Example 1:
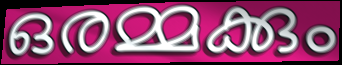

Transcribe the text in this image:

ഒരമ്മക്കും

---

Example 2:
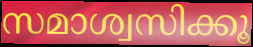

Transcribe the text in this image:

സമാശ്വസിക്കൂ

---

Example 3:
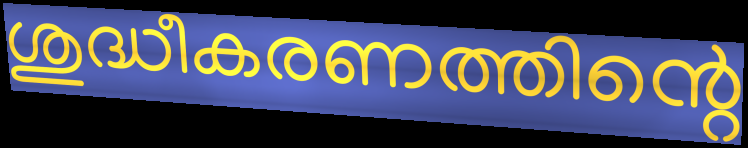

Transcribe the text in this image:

ശുദ്ധീകരണത്തിന്റെ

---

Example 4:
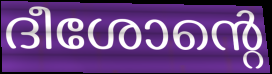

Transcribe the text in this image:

ദീശോന്റെ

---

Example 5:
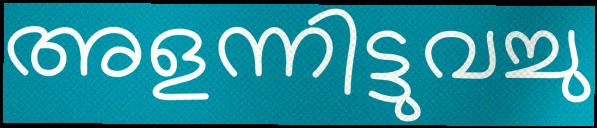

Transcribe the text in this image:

അളന്നിട്ടുവച്ചു